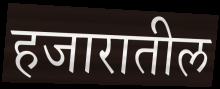
हजारातील